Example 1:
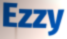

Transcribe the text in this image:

Ezzy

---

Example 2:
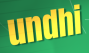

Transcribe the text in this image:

undhi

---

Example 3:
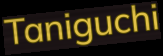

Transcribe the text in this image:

Taniguchi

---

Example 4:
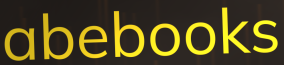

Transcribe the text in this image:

abebooks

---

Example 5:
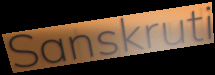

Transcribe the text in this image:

Sanskruti